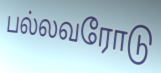
பல்லவரோடு